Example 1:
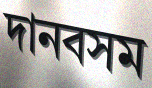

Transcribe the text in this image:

দানবসম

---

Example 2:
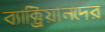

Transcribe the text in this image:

ব্যাক্ট্রিয়ানদের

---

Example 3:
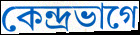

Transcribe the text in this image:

কেন্দ্রভাগে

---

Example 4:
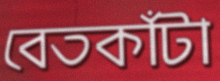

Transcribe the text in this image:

বেতকাঁটা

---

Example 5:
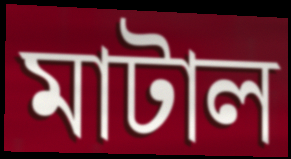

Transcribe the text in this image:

মাটাল